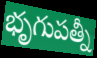
భృగుపత్నీ